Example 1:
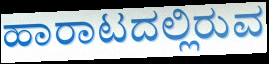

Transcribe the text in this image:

ಹಾರಾಟದಲ್ಲಿರುವ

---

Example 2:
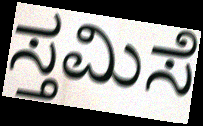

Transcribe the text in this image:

ಸ್ತಮಿಸೆ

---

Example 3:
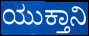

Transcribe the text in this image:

ಯುಕ್ತಾನಿ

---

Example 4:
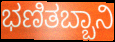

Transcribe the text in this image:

ಭಣಿತಬ್ಬಾನಿ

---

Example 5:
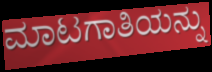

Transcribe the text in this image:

ಮಾಟಗಾತಿಯನ್ನು